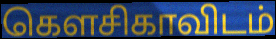
கௌசிகாவிடம்